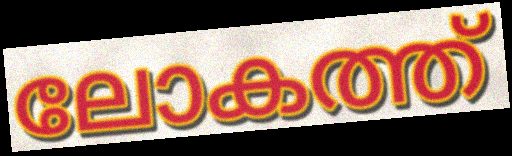
ലോകത്ത്